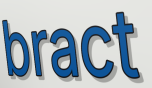
bract